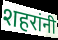
शहरांनी